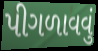
પીગળાવવું